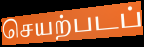
செயற்படப்